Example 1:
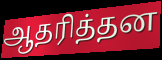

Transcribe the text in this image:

ஆதரித்தன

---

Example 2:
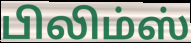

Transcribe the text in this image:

பிலிம்ஸ்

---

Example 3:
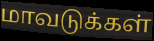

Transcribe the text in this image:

மாவடுக்கள்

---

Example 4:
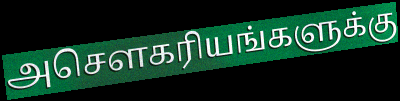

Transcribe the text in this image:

அசௌகரியங்களுக்கு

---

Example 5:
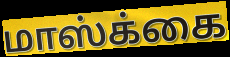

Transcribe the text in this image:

மாஸ்க்கை